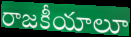
రాజకీయాలూ